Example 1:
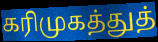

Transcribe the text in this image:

கரிமுகத்துத்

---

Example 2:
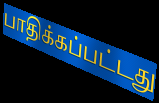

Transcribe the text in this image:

பாதிக்கப்பட்டது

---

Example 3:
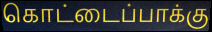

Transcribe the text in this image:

கொட்டைப்பாக்கு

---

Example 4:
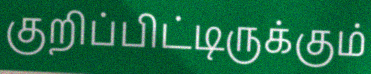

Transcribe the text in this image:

குறிப்பிட்டிருக்கும்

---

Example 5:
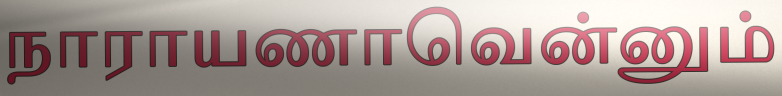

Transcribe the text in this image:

நாராயணாவென்னும்